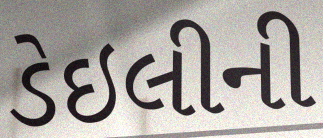
ડેઇલીની